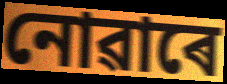
নোৱাৰে